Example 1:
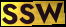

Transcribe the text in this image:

SSW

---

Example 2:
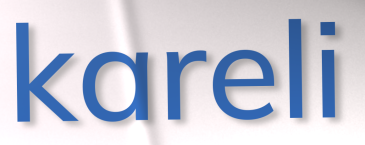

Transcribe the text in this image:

kareli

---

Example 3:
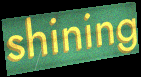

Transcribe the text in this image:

shining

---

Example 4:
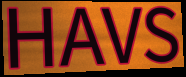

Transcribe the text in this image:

HAVS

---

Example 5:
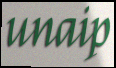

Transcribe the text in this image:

unaip